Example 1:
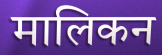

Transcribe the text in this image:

मालिकन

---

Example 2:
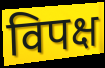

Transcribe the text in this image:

विपक्ष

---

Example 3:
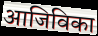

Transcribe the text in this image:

आजिविका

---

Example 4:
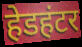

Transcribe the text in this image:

हेडहंटर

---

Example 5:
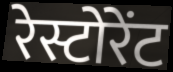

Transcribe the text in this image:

रेस्टोरेंट